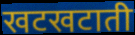
खटखटाती